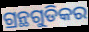
ଗ୍ରନ୍ଥଗୁଡିକର